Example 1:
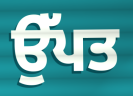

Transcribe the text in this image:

ਉੱਪਤ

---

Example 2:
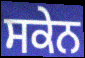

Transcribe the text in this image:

ਸਕੇਨ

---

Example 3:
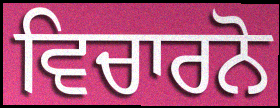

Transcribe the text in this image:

ਵਿਚਾਰਨੋ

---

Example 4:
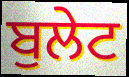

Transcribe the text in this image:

ਬੁਲੇਟ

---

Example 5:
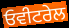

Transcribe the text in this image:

ਓਵੀਟਰੇਲ